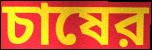
চাষের